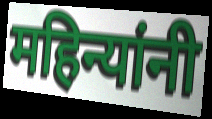
महिन्यांनी